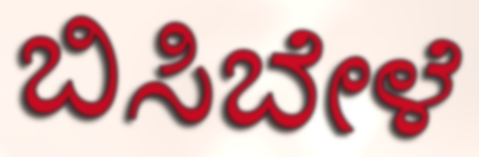
ಬಿಸಿಬೇಳೆ